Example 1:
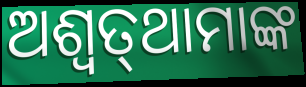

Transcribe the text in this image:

ଅଶ୍ୱତ୍‌ଥାମାଙ୍କ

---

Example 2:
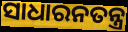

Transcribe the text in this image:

ସାଧାରନତନ୍ତ୍ର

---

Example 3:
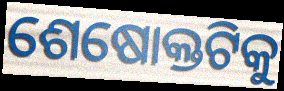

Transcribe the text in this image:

ଶେଷୋକ୍ତଟିକୁ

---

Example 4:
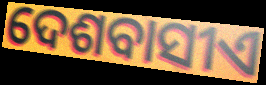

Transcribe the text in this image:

ଦେଶବାସୀଏ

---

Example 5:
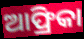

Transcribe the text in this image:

ଆଫ୍ରିକା